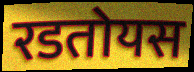
रडतोयस